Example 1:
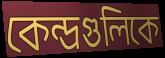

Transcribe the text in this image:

কেন্দ্রগুলিকে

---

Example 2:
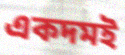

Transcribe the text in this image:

একদমই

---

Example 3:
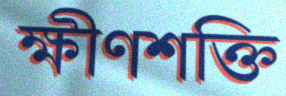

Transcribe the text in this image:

ক্ষীণশক্তি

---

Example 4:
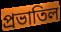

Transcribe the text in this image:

প্রভাতিল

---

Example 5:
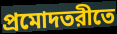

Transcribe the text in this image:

প্রমোদতরীতে